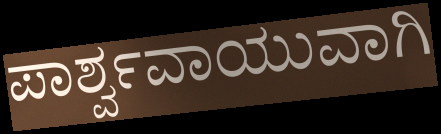
ಪಾರ್ಶ್ವವಾಯುವಾಗಿ